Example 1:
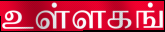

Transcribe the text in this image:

உள்ளகங்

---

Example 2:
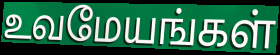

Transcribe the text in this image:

உவமேயங்கள்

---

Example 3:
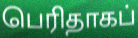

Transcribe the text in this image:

பெரிதாகப்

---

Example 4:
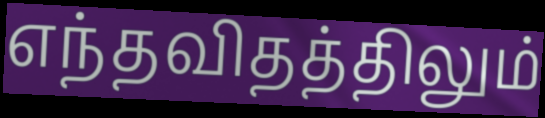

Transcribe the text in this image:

எந்தவிதத்திலும்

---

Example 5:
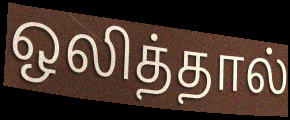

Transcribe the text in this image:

ஒலித்தால்